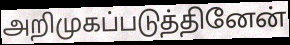
அறிமுகப்படுத்தினேன்